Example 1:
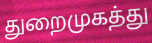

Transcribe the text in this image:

துறைமுகத்து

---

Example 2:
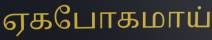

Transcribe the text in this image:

ஏகபோகமாய்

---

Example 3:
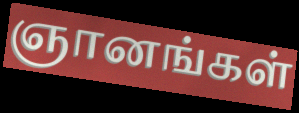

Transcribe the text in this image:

ஞானங்கள்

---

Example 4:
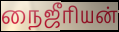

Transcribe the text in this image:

நைஜீரியன்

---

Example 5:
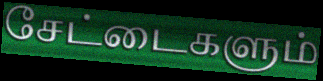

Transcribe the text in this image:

சேட்டைகளும்